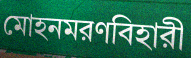
মোহনমরণবিহারী